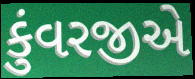
કુંવરજીએ